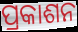
ପ୍ରକାଶନ